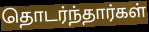
தொடர்ந்தார்கள்